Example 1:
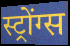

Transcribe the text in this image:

स्ट्रोंग्स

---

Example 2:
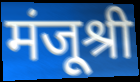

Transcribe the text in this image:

मंजूश्री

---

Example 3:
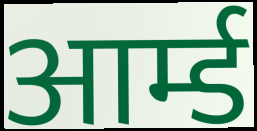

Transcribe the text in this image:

आर्म्ड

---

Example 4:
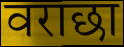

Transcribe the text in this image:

वराछा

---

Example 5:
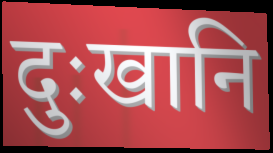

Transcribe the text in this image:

दुःखानि